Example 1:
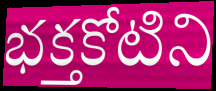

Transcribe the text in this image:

భక్తకోటిని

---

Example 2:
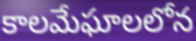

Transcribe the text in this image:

కాలమేఘాలలోన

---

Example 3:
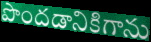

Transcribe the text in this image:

పొందడానికిగాను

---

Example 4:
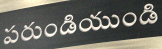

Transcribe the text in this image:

పరుండియుండి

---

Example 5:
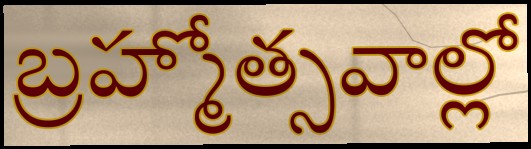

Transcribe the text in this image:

బ్రహ్మోత్సవాల్లో